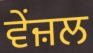
ਵੇਂਜ਼ਲ